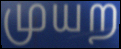
முயற